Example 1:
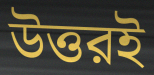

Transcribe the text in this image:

উত্তরই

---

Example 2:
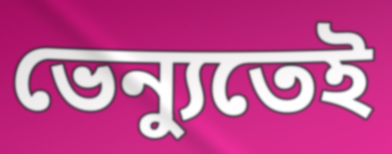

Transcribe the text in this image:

ভেন্যুতেই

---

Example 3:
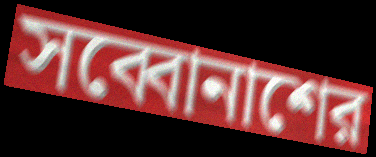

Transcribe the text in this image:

সব্বোনাশের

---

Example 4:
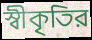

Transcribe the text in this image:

স্বীকৃতির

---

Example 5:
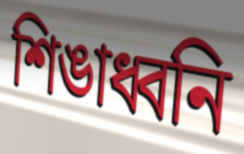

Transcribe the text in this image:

শিঙাধ্বনি